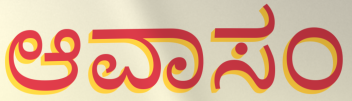
ಆವಾಸಂ